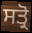
ਸਤ੍ਰੋ